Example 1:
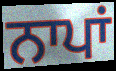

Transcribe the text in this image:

ਨਾਪਾਂ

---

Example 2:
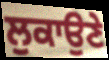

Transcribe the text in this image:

ਲੁਕਾਉਣੇ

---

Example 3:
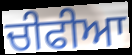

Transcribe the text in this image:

ਚੀਫੀਆ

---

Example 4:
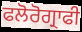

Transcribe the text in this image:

ਫਲੋਰੋਗ੍ਰਾਫੀ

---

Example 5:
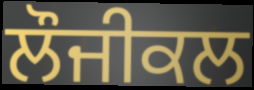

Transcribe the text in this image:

ਲੌਜੀਕਲ